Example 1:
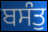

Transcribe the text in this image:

ਬਸੰਤੁ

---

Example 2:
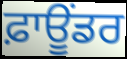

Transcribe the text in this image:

ਫ਼ਾਊਂਡਰ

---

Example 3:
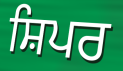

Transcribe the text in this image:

ਸ਼ਿਪਰ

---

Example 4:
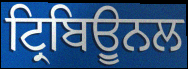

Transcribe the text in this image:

ਟ੍ਰਿਬਿਊੁਨਲ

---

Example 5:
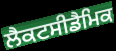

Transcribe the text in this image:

ਲੈਕਟਸੀਡੈਮਿਕ